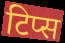
टिप्स